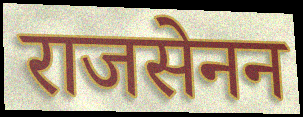
राजसेनन